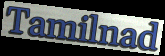
Tamilnad